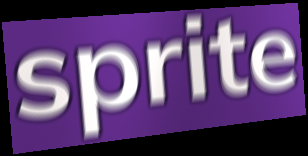
sprite